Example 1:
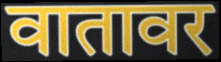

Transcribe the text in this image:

वातावर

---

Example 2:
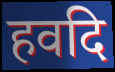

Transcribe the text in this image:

हवदि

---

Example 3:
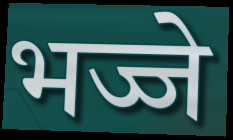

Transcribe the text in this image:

भज्जे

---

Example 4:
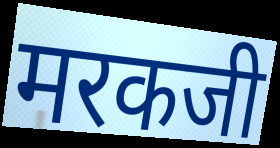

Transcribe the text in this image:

मरकजी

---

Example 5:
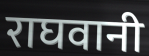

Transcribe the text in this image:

राघवानी